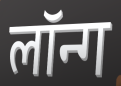
लॉन्ग